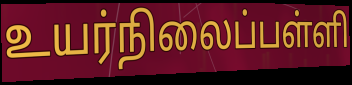
உயர்நிலைப்பள்ளி